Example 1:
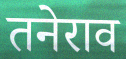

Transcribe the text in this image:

तनेराव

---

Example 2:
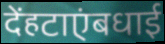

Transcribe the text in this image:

देंहटाएंबधाई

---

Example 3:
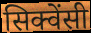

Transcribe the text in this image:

सिक्वेंसी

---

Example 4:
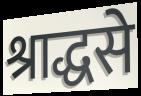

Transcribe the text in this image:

श्राद्धसे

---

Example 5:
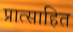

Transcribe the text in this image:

प्रात्साहित